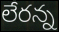
లేరన్న